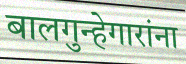
बालगुन्हेगारांना